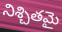
నిశ్చితమై